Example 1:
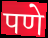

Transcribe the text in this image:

पणे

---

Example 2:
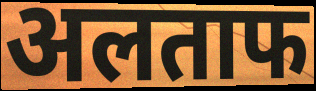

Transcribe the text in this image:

अलताफ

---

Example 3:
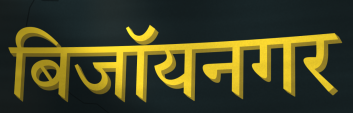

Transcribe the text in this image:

बिजॉयनगर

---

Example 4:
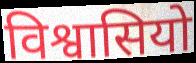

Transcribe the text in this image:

विश्वासियो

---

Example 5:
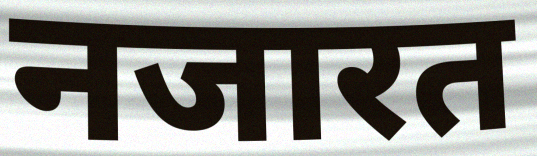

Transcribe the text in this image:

नजारत